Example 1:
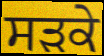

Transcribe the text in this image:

ਸਡ਼ਕੇ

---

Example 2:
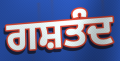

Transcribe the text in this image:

ਗਸ਼ਤੰਦ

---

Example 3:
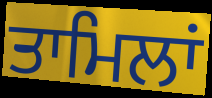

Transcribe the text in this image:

ਤਾਮਿਲਾਂ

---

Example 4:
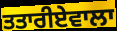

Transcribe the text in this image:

ਤਤਾਰੀਏਵਾਲਾ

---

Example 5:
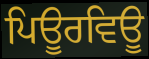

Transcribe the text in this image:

ਪਿਊਰਵਿਊ